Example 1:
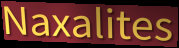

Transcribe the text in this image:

Naxalites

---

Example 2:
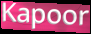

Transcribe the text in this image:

Kapoor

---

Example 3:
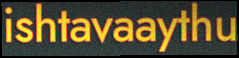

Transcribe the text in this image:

ishtavaaythu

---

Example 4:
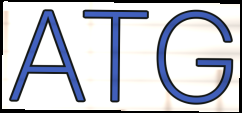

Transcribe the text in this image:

ATG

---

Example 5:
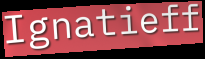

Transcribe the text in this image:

Ignatieff